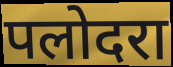
पलोदरा